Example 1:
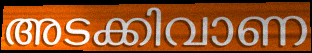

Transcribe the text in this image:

അടക്കിവാണ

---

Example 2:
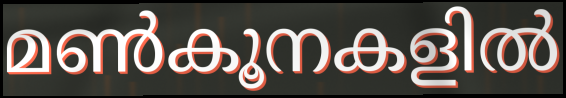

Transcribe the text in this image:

മൺകൂനകളിൽ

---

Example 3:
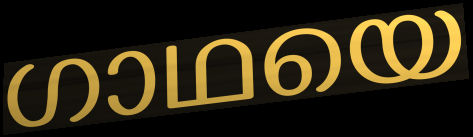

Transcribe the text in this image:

ഗാഥയെ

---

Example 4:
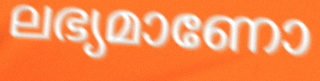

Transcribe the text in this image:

ലഭ്യമാണോ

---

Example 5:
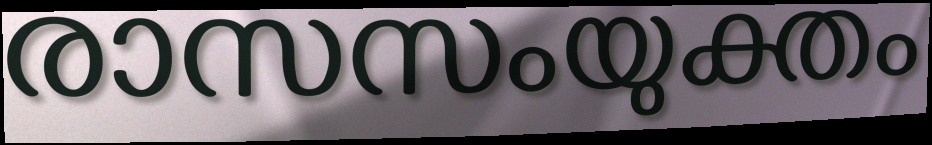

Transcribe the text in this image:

രാസസംയുക്തം